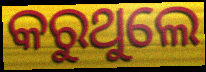
କରୁଥୁଲେ